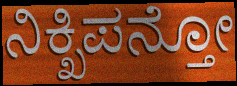
ನಿಕ್ಖಿಪನ್ತೋ